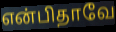
என்பிதாவே